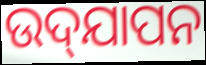
ଉଦ୍‌ଯାପନ